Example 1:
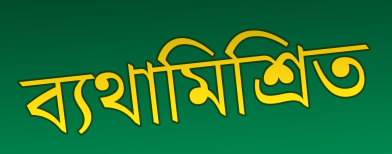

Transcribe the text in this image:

ব্যথামিশ্রিত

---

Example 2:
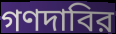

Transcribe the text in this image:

গণদাবির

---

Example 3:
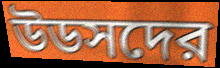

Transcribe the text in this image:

উডসদের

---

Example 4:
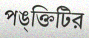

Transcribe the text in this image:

পঙ্‌ক্তিটির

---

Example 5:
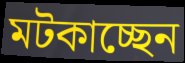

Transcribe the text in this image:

মটকাচ্ছেন